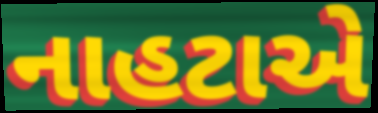
નાહટાએ